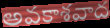
అవకాశవాద